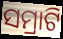
ସମ୍ରାଟି